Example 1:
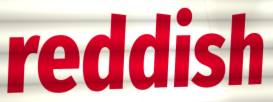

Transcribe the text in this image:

reddish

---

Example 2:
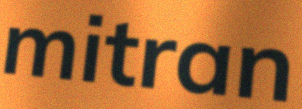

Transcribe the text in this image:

mitran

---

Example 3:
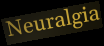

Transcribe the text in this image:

Neuralgia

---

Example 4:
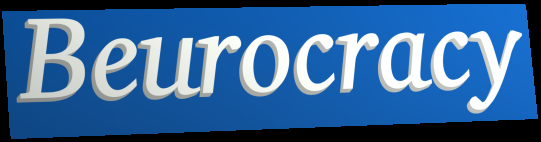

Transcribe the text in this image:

Beurocracy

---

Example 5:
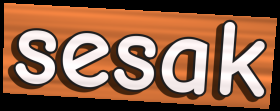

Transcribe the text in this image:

sesak